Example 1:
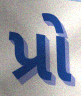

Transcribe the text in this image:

પ્રો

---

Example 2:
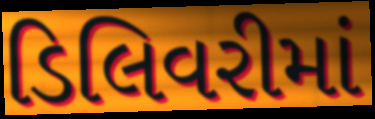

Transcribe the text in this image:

ડિલિવરીમાં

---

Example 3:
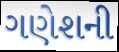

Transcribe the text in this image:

ગણેશની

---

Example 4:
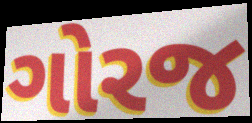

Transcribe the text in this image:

ગોરજ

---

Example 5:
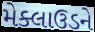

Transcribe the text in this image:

મેક્લાઉડને